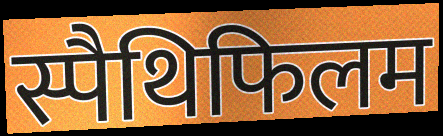
स्पैथिफिलम